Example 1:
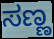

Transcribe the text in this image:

ಸಣ್ಣ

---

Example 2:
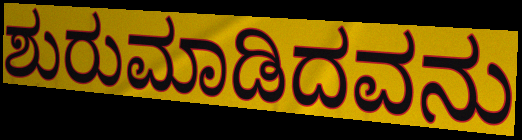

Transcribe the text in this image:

ಶುರುಮಾಡಿದವನು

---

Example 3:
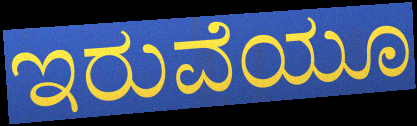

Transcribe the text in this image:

ಇರುವೆಯೂ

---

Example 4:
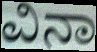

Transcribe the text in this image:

ವಿನಾ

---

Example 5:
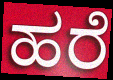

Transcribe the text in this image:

ಹರೆ